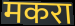
मकरा